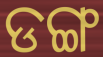
ଡଙ୍ଗ